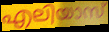
എലിയാസ്